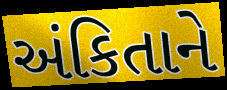
અંકિતાને